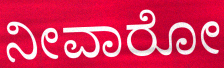
ನೀವಾರೋ